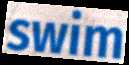
swim